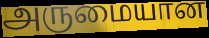
அருமையான